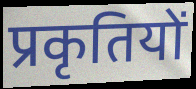
प्रकृतियों